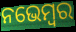
ନଭେମ୍ବର